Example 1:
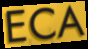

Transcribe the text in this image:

ECA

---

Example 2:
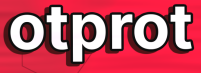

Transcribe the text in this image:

otprot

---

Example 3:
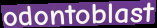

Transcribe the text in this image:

odontoblast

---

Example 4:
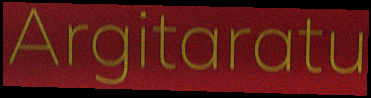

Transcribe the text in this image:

Argitaratu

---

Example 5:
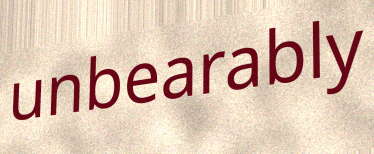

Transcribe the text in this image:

unbearably